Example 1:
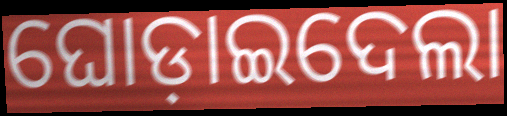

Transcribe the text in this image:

ଘୋଡ଼ାଇଦେଲା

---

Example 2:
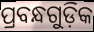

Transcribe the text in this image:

ପ୍ରବନ୍ଧଗୁଡ଼ିକ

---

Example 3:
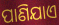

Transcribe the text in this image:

ପାଣିଯାଏ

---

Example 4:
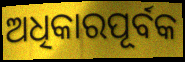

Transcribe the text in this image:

ଅଧିକାରପୂର୍ବକ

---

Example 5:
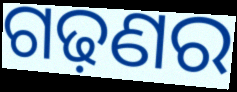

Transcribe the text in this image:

ଗଢ଼ଣର